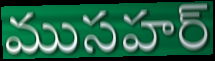
ముసహర్